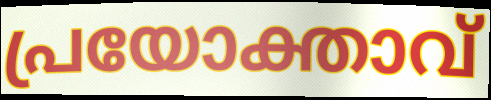
പ്രയോക്താവ്